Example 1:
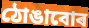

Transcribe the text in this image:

ঠোঙাবোৰ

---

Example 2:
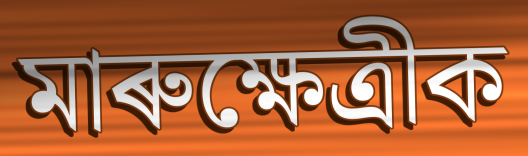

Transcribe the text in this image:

মাৰুক্ষেত্ৰীক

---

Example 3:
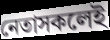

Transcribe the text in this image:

নেতাসকলেই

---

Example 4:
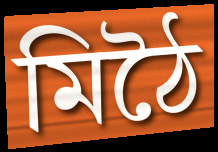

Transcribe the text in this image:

মিঠৈ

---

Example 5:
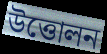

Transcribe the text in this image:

উত্তোলন